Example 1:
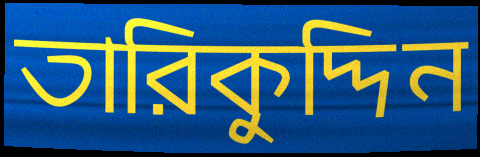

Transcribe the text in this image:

তারিকুদ্দিন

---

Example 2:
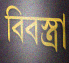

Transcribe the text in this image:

বিবস্ত্রা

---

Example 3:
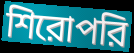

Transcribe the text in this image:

শিরোপরি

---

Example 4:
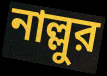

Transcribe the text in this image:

নাল্লুর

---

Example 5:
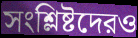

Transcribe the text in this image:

সংশ্লিষ্টদেরও